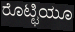
ರೊಟ್ಟಿಯೂ